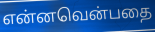
என்னவென்பதை